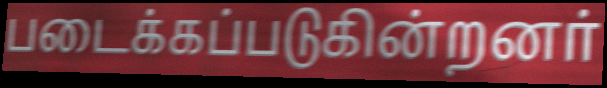
படைக்கப்படுகின்றனர்